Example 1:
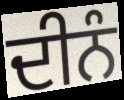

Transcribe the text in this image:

ਦੀਨੰ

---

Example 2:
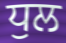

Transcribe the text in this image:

ਧੁਲ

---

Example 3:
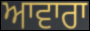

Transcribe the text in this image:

ਆਵਾਰਾ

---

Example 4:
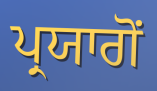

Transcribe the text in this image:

ਪ੍ਰਯਾਗੋਂ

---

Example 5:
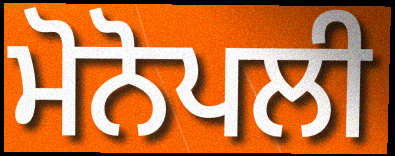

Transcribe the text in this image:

ਮੋਨੋਪਲੀ